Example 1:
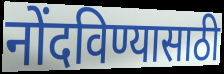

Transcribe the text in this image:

नोंदविण्यासाठी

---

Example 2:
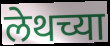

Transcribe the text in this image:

लेथच्या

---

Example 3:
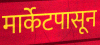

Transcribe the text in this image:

मार्केटपासून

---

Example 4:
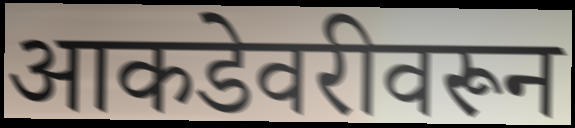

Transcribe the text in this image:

आकडेवरीवरून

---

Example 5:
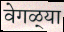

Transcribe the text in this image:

वेगळ्‌या